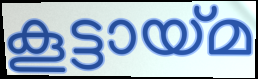
കൂട്ടായ്മ